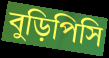
বুড়িপিসি